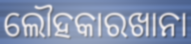
ଲୌହକାରଖାନା